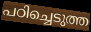
പഠിച്ചെടുത്ത